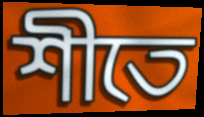
শীতে